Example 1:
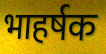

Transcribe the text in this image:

भाहर्षक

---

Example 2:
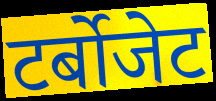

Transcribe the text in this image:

टर्बोजेट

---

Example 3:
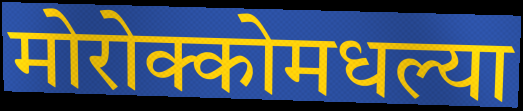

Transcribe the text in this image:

मोरोक्कोमधल्या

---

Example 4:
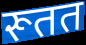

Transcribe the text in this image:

रूतत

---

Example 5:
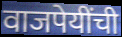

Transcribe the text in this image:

वाजपेयींची